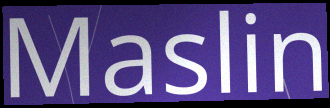
Maslin